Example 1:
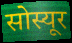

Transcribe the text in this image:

सोस्यूर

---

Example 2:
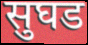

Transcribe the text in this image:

सुघड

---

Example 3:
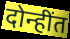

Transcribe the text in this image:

दोन्हींत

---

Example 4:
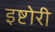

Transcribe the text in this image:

इष्टोरी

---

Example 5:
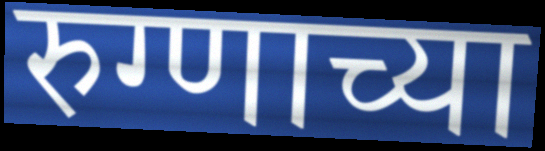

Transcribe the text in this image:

रुग्णाच्या